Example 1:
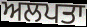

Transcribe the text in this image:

ਅਲਪਤਾ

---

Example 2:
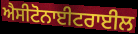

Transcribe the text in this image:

ਐਸੀਟੋਨਾਈਟਰਾਈਲ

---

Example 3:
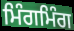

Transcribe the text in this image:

ਮਿੰਗਮਿੰਗ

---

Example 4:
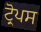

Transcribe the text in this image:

ਟ੍ਰੋਪਸ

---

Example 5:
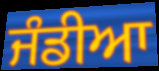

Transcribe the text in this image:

ਜੰਡੀਆ